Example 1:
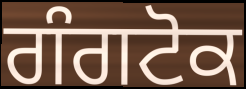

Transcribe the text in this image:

ਗੰਗਟੋਕ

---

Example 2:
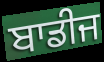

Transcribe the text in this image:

ਬਾਡੀਜ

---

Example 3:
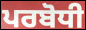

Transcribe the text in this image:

ਪਰਬੋਧੀ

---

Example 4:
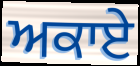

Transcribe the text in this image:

ਅਕਾਏ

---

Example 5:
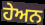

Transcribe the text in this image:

ਹੇਅਨ